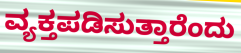
ವ್ಯಕ್ತಪಡಿಸುತ್ತಾರೆಂದು